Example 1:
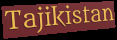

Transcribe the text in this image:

Tajikistan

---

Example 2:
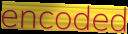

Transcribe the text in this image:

encoded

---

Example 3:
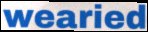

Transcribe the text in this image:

wearied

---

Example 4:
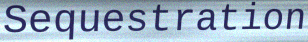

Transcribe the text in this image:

Sequestration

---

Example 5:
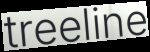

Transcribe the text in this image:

treeline